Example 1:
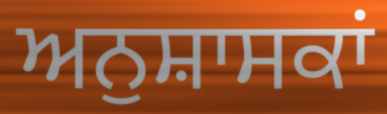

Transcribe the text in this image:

ਅਨੁਸ਼ਾਸਕਾਂ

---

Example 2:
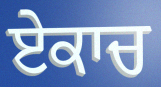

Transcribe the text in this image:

ਏਕਾਚ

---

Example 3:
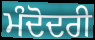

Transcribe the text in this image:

ਮੰਦੋਦਰੀ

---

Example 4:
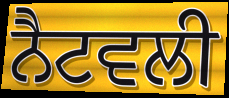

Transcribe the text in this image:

ਨੈਟਵਲੀ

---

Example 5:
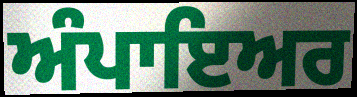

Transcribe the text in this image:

ਅੰਪਾਇਅਰ